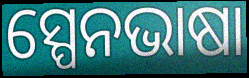
ସ୍ପେନଭାଷା